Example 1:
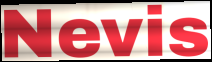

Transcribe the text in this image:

Nevis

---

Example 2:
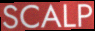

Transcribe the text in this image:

SCALP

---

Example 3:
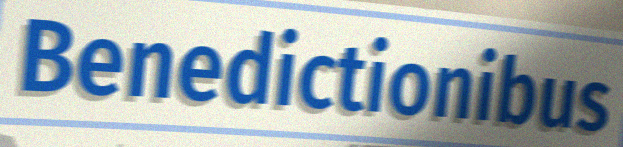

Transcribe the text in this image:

Benedictionibus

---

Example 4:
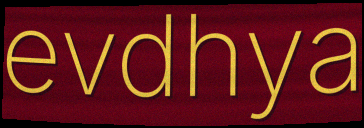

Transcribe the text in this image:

evdhya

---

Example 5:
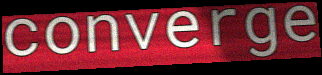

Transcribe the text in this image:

converge